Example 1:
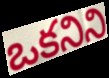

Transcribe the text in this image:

ఒకనిని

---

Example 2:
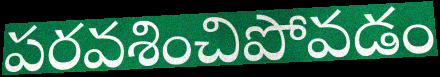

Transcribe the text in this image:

పరవశించిపోవడం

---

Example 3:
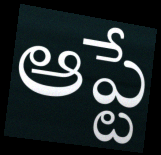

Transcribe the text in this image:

ఆప్టే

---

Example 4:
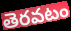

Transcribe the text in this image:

తెరవటం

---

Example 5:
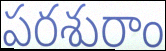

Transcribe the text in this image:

పరశురాం